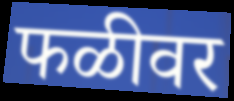
फळीवर